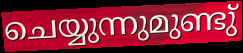
ചെയ്യുന്നുമുണ്ടു്